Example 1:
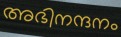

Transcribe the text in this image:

അഭിനന്ദനം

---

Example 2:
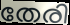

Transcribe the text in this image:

തേരി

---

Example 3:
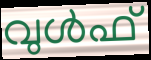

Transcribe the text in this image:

വുൾഫ്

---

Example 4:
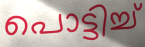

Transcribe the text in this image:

പൊട്ടിച്ച്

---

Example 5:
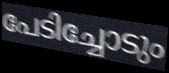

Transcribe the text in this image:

പേടിച്ചോടും